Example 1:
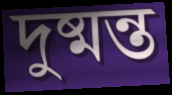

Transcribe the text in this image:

দুষ্মন্ত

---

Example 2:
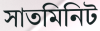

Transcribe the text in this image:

সাতমিনিট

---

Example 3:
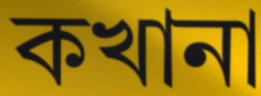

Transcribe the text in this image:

কখানা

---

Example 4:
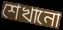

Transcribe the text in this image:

শেখানো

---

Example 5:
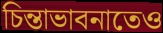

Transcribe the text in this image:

চিন্তাভাবনাতেও